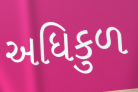
અધિકુળ